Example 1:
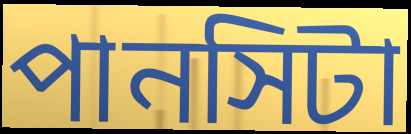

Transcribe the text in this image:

পানসিটা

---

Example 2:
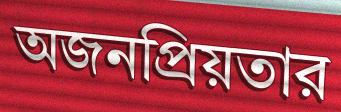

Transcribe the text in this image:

অজনপ্রিয়তার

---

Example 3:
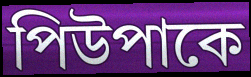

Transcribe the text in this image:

পিউপাকে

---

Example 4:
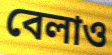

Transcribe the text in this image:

বেলাও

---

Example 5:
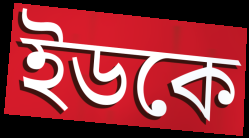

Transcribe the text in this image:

ইডকে